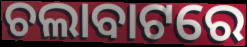
ଚଲାବାଟରେ